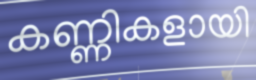
കണ്ണികളായി